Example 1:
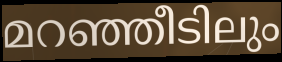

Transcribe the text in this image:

മറഞ്ഞീടിലും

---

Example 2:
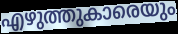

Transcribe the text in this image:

എഴുത്തുകാരെയും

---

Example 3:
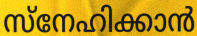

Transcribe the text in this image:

സ്നേഹിക്കാൻ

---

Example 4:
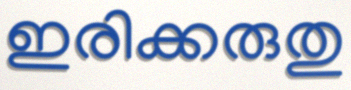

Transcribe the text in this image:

ഇരിക്കരുതു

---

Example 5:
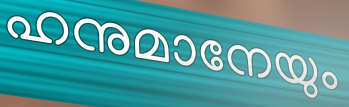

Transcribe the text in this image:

ഹനുമാനേയും